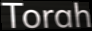
Torah